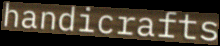
handicrafts